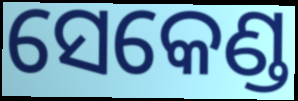
ସେକେଣ୍ଡ